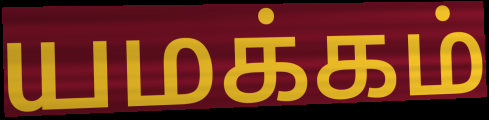
யமக்கம்